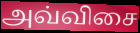
அவ்விசை